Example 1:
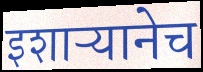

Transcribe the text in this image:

इशाऱ्यानेच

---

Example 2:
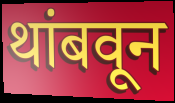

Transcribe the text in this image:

थांबवून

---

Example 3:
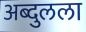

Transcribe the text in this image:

अब्दुलला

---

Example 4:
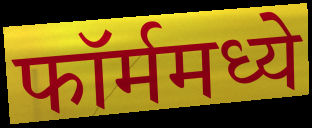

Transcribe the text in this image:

फॉर्ममध्ये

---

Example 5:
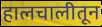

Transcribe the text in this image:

हालचालीतून